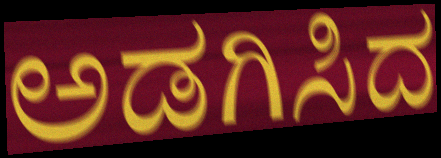
ಅಡಗಿಸಿದ